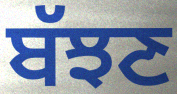
ਬੱਝਣ